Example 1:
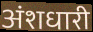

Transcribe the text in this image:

अंशधारी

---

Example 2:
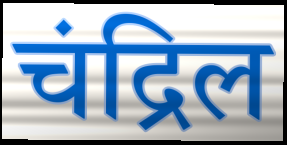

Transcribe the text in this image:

चंद्रिल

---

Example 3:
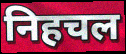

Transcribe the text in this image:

निहचल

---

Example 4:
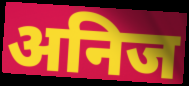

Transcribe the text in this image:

अनिज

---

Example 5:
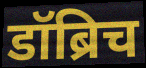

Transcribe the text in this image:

डॉब्रिच